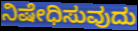
ನಿಷೇಧಿಸುವುದು